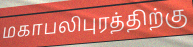
மகாபலிபுரத்திற்கு